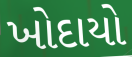
ખોદાયો